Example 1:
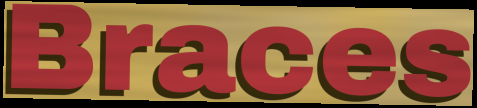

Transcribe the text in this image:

Braces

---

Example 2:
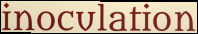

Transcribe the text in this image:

inoculation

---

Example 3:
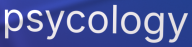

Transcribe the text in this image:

psycology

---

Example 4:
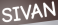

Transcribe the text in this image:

SIVAN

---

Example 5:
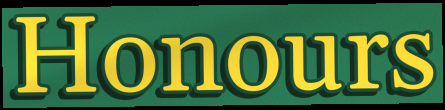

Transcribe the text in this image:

Honours